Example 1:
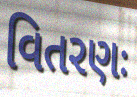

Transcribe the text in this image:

વિતરણઃ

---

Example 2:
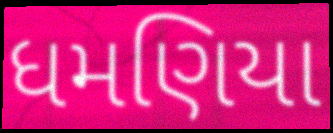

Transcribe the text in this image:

ધમણિયા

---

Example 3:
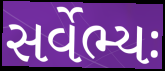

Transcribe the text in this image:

સર્વેભ્યઃ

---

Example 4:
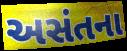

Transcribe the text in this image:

અસંતના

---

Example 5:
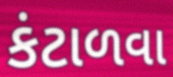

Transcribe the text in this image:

કંટાળવા